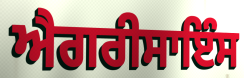
ਐਗਰੀਸਾਇੰਸ